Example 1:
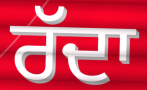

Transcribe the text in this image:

ਰੱਦਾ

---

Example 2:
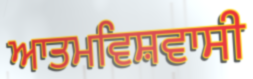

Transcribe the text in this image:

ਆਤਮਵਿਸ਼ਵਾਸੀ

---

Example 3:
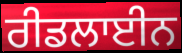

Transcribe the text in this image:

ਰੀਡਲਾਈਨ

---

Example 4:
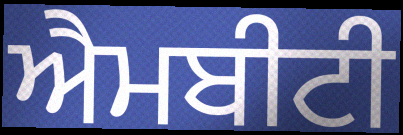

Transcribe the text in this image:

ਐਮਬੀਟੀ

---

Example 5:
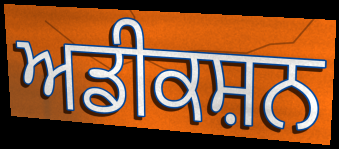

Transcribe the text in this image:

ਅਡੀਕਸ਼ਨ